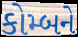
કોમ્બને